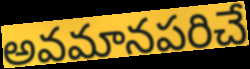
అవమానపరిచే